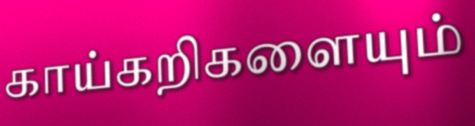
காய்கறிகளையும்